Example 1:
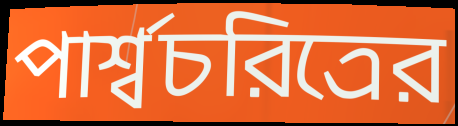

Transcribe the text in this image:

পার্শ্বচরিত্রের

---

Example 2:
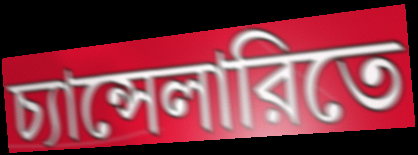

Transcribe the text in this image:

চ্যান্সেলারিতে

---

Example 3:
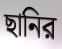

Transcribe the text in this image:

ছানির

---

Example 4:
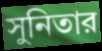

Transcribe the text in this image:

সুনিতার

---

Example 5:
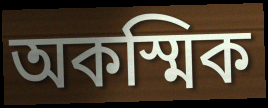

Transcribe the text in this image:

অকস্মিক